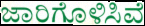
ಜಾರಿಗೊಳಿಸಿವೆ